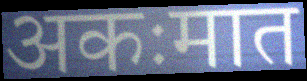
अकःमात